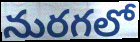
నురగలో